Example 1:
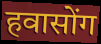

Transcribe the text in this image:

हवासोंग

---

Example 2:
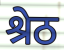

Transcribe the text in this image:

श्रेठ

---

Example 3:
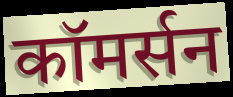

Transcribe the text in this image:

कॉमर्सन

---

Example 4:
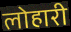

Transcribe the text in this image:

लोहारी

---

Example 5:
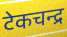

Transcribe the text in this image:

टेकचन्द्र